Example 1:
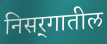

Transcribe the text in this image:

निसर्गातील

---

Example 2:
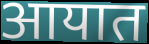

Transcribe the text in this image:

आयात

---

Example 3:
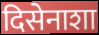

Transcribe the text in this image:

दिसेनाशा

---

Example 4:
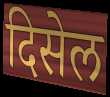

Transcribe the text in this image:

दिसेल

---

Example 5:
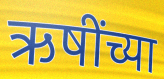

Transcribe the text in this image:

ऋषींच्या